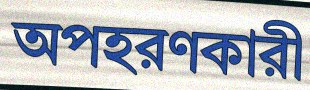
অপহরণকারী